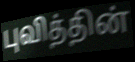
புவித்தின்